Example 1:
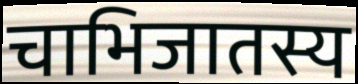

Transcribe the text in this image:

चाभिजातस्य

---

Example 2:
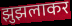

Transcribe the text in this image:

झुझलाकर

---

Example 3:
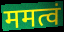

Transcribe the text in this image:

ममत्वं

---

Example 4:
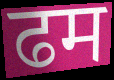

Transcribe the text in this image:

ढम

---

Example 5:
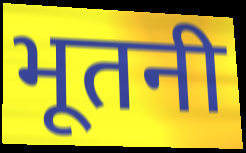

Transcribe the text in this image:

भूतनी